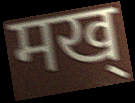
मख्